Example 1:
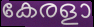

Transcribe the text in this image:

കേരളാ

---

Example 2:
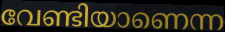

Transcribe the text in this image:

വേണ്ടിയാണെന്ന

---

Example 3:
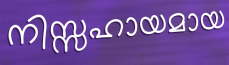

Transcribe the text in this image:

നിസ്സഹായമായ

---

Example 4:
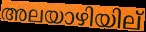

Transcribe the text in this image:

അലയാഴിയില്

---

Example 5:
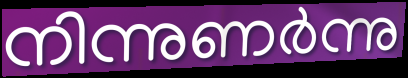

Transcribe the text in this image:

നിന്നുണർന്നു